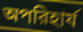
অপরিহার্য